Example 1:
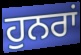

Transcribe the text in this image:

ਹੁਨਰਾਂ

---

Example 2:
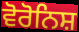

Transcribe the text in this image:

ਵੋਰੋਨਿਸ਼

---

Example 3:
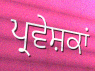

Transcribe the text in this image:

ਪ੍ਰਵੇਸ਼ਕਾਂ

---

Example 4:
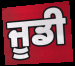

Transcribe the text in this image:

ਜੂਡੀ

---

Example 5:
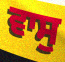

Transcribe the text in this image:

ਵਾਸੁ